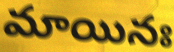
మాయినః